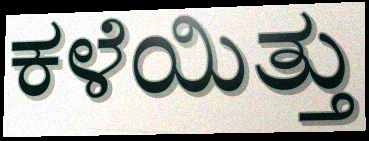
ಕಳೆಯಿತ್ತು